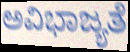
ಅವಿಭಾಜ್ಯತೆ